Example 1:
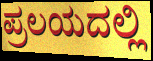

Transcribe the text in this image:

ಪ್ರಲಯದಲ್ಲಿ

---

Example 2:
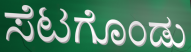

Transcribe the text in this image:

ಸೆಟಗೊಂಡು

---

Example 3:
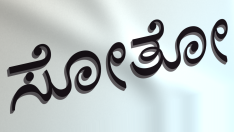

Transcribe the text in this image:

ಸೋತೋ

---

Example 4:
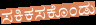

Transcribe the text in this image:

ಸಕಿಕಸಕೊಂಡು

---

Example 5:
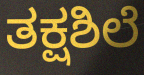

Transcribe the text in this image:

ತಕ್ಷಶಿಲೆ